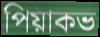
পিয়াকভ